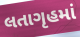
લતાગૃહમાં